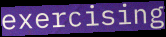
exercising